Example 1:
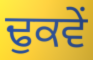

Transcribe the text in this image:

ਢੁਕਵੇਂ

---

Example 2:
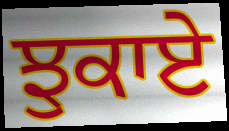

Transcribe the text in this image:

ਝੁਕਾਏ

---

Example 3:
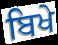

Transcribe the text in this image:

ਬਿਖੇ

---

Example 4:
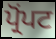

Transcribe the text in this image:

ਪ੍ਰੋਂਪਟ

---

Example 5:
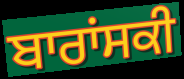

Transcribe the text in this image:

ਬਾਰਾਂਸਕੀ